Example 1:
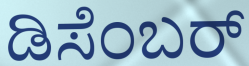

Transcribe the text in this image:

ಡಿಸೆಂಬರ್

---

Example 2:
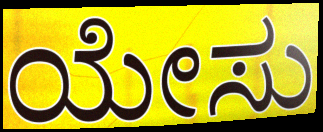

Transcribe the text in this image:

ಯೇಸು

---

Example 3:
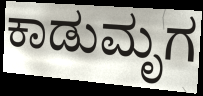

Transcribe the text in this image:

ಕಾಡುಮೃಗ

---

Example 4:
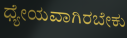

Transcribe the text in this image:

ಧ್ಯೇಯವಾಗಿರಬೇಕು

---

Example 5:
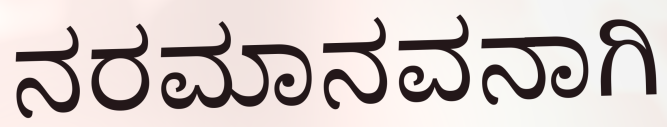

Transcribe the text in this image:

ನರಮಾನವನಾಗಿ